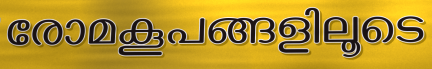
രോമകൂപങ്ങളിലൂടെ